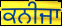
ਕਨੀਜਾ